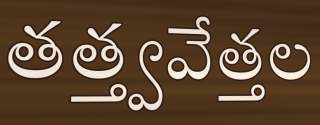
తత్త్వవేత్తల